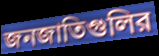
জনজাতিগুলির